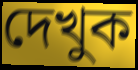
দেখুক